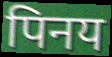
पिनय